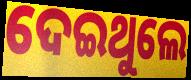
ଦେଇଥୁଲେ